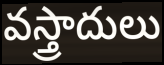
వస్త్రాదులు